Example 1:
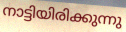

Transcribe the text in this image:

നാട്ടിയിരിക്കുന്നു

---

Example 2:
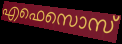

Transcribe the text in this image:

എഫെസൊസ്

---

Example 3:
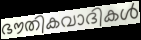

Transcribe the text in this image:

ഭൗതികവാദികൾ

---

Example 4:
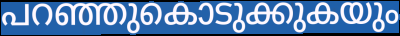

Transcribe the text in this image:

പറഞ്ഞുകൊടുക്കുകയും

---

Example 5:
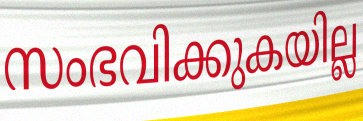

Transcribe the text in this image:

സംഭവിക്കുകയില്ല